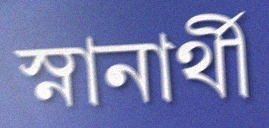
স্নানার্থী